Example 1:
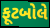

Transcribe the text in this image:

ફૂટબોલે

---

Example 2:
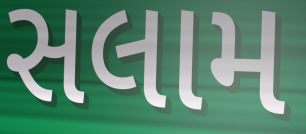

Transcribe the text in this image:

સલામ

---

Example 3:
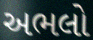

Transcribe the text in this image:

અભલો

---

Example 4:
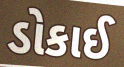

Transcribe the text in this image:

ડોકાઈ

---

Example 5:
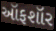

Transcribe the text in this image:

ઑફશૉર